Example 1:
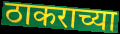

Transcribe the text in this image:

ठाकराच्या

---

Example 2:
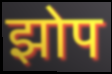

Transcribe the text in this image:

झोप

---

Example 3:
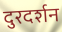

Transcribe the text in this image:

दुरदर्शन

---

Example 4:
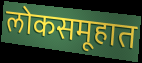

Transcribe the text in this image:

लोकसमूहात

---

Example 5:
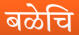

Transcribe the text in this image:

बळेचि